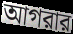
আগরার